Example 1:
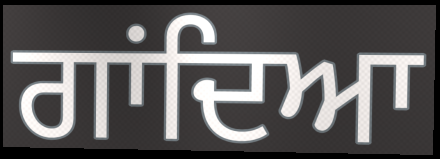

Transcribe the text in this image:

ਗਾਂਦਿਆ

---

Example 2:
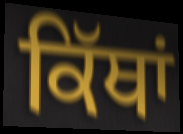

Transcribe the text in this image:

ਕਿੱਥਾਂ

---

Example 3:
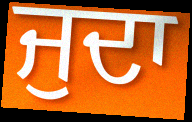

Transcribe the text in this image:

ਜੁਦਾ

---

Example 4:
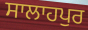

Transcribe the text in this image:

ਸਾਲਾਹਪੁਰ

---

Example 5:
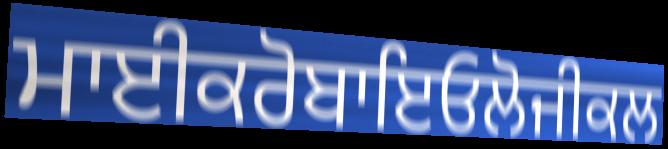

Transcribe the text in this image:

ਮਾਈਕਰੋਬਾਇਓਲੋਜੀਕਲ